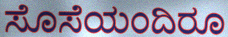
ಸೊಸೆಯಂದಿರೂ